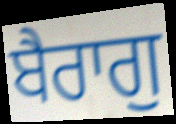
ਬੈਰਾਗੁ